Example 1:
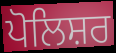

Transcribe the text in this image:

ਪੋਲਿਸ਼ਰ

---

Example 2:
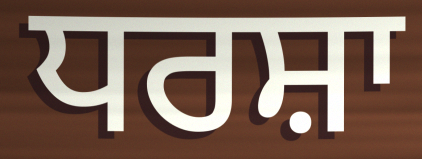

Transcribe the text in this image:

ਧਰਸ਼ਾ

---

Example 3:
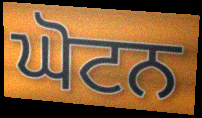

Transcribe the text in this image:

ਘੋਟਨ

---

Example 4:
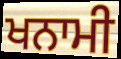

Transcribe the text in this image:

ਖਨਾਮੀ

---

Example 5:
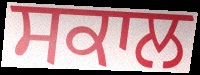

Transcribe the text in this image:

ਸਕਾਲ